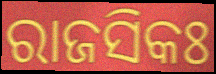
ରାଜସିକଃ